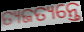
ତ୍ୟଜତ୍ୟନ୍ତେ